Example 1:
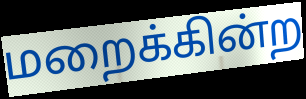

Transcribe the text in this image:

மறைக்கின்ற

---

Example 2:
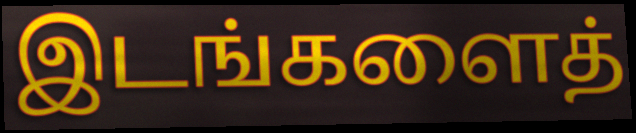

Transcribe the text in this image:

இடங்களைத்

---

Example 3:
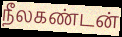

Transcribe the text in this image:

நீலகண்டன்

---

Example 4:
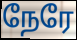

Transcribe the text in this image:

நேரே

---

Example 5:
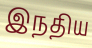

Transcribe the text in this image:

இநதிய